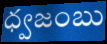
ధ్వజంబు